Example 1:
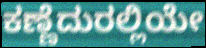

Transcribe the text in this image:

ಕಣ್ಣೆದುರಲ್ಲಿಯೇ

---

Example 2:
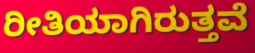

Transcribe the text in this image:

ರೀತಿಯಾಗಿರುತ್ತವೆ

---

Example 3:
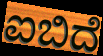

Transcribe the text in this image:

ಐಬಿದೆ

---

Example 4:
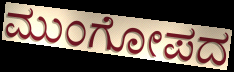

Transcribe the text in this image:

ಮುಂಗೋಪದ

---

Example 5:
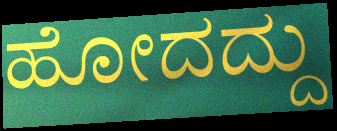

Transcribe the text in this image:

ಹೋದದ್ದು